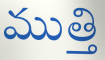
ముత్తి